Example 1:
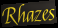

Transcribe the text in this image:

Rhazes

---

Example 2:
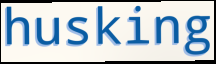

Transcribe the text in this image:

husking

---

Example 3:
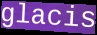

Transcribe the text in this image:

glacis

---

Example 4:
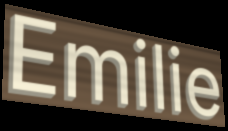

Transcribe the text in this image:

Emilie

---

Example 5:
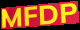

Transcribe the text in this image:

MFDP